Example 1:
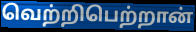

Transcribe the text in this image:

வெற்றிபெற்றான்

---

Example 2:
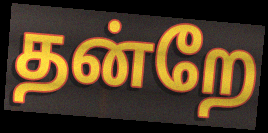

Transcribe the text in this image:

தன்றே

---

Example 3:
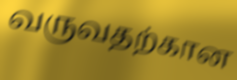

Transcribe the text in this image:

வருவதற்கான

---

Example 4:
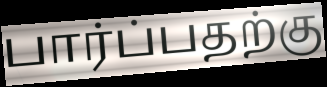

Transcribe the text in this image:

பார்ப்பதற்கு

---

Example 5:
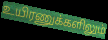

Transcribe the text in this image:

உயிரணுக்களிலும்